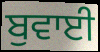
ਬੁਵਾਈ